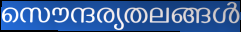
സൌന്ദര്യതലങ്ങൾ